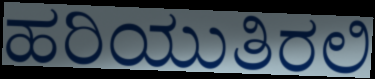
ಹರಿಯುತಿರಲಿ